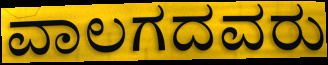
ವಾಲಗದವರು